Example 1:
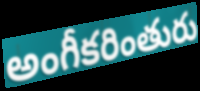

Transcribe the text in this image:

అంగీకరింతురు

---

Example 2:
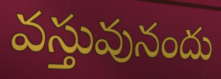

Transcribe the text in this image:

వస్తువునందు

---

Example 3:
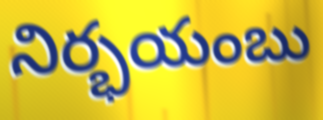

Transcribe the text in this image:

నిర్భయంబు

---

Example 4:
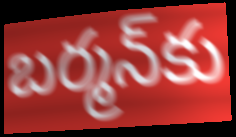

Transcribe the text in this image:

బర్మన్‌కు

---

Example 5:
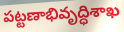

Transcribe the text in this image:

పట్టణాభివృద్ధిశాఖ